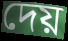
দেয়